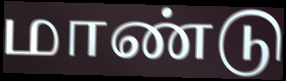
மாண்டு